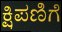
ಕ್ಷಿಪಣಿಗೆ